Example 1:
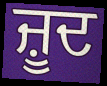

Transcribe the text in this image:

ਜ਼ੂਦ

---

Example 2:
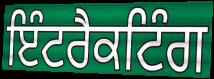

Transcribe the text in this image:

ਇੰਟਰੈਕਟਿੰਗ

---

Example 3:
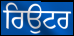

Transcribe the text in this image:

ਰਿਉਟਰ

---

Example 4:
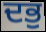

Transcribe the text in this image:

ਦਭੁ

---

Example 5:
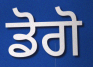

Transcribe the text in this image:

ਡੋਗੋ